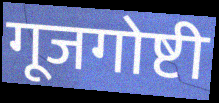
गूजगोष्टी